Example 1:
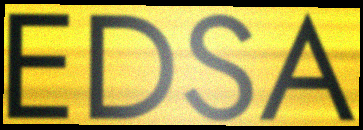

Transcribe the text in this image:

EDSA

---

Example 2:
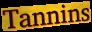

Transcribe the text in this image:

Tannins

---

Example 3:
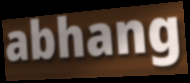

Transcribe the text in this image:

abhang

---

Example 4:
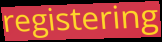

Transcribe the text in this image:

registering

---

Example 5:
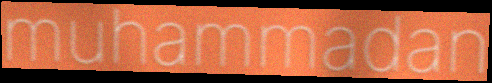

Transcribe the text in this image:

muhammadan